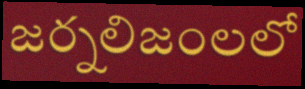
జర్నలిజంలలో